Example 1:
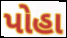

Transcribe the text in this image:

પોહા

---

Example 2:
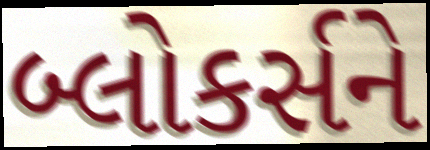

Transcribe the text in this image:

બ્લોકર્સને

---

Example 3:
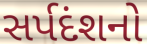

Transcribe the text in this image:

સર્પદંશનો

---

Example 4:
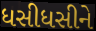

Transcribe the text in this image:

ધસીધસીને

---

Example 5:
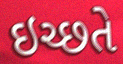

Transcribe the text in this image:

ઇચ્છતે